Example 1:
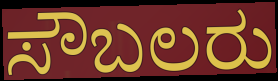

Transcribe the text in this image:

ಸೌಬಲರು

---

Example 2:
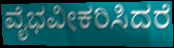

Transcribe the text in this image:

ವೈಭವೀಕರಿಸಿದರೆ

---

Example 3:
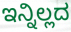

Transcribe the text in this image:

ಇನ್ನಿಲ್ಲದ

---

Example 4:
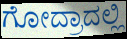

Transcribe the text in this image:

ಗೋದ್ರಾದಲ್ಲಿ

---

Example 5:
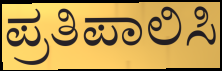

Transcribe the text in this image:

ಪ್ರತಿಪಾಲಿಸಿ